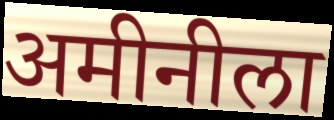
अमीनीला